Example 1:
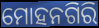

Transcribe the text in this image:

ମୋହନଗିରି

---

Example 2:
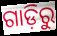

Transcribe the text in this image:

ଗାଡ଼ିରୁ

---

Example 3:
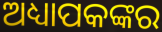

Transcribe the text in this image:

ଅଧ୍ୟାପକଙ୍କର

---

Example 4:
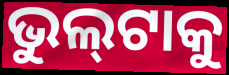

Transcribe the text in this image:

ଭୁଲ୍‍ଟାକୁ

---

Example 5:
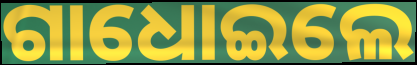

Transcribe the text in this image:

ଗାଧୋଇଲେ